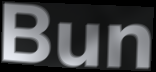
Bun